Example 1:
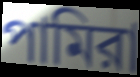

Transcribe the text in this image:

পামিরা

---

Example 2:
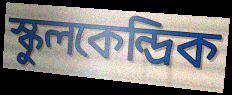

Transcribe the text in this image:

স্কুলকেন্দ্রিক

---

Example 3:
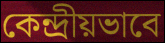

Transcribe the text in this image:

কেন্দ্রীয়ভাবে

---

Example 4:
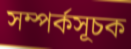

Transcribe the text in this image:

সম্পর্কসূচক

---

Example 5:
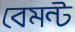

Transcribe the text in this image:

বেমন্ট